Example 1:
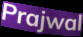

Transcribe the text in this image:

Prajwal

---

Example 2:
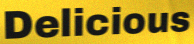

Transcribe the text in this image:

Delicious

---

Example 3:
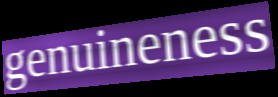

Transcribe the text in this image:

genuineness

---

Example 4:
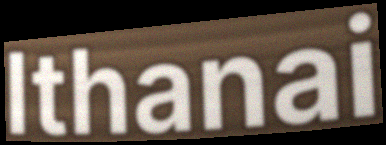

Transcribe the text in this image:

Ithanai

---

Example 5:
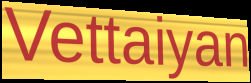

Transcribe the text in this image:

Vettaiyan